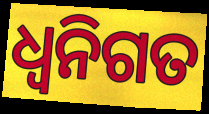
ଧ୍ଵନିଗତ